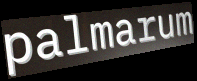
palmarum